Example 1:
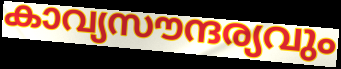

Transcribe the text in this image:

കാവ്യസൗന്ദര്യവും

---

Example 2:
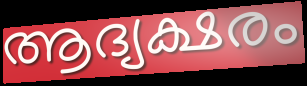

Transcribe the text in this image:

ആദ്യക്ഷരം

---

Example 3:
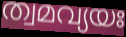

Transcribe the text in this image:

ത്വമവ്യയഃ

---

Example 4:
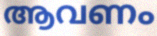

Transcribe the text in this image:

ആവണം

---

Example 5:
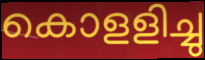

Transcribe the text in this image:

കൊളളിച്ചു